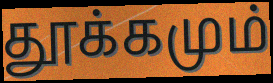
தூக்கமும்